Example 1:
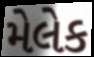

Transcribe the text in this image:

મેલેક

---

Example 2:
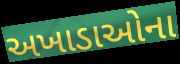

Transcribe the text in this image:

અખાડાઓના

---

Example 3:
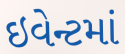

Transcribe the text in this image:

ઇવેન્ટમાં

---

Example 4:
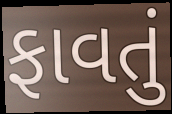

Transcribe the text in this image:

ફાવતું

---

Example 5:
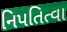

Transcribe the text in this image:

નિપતિત્વા